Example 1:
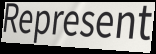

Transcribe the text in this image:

Represent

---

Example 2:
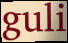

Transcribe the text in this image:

guli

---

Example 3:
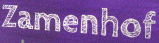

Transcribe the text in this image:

Zamenhof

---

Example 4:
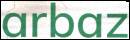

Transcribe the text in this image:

arbaz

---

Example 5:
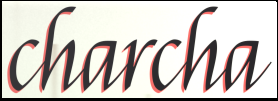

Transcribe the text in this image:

charcha